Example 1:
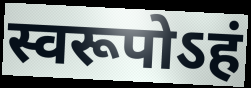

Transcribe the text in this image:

स्वरूपोऽहं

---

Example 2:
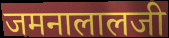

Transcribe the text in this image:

जमनालालजी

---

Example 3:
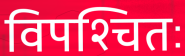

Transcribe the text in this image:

विपश्चितः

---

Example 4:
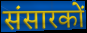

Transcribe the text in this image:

संसारकों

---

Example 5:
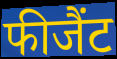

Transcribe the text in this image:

फीजैंट